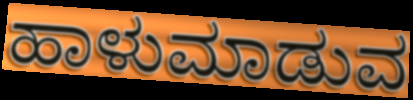
ಹಾಳುಮಾಡುವ